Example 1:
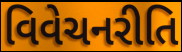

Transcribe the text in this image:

વિવેચનરીતિ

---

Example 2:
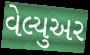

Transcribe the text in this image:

વેલ્યુઅર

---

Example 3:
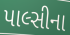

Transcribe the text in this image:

પાલ્સીના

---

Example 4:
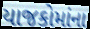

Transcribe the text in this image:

યાજકોમાંના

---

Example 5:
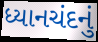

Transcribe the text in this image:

ધ્યાનચંદનું